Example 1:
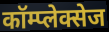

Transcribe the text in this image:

कॉम्प्लेक्सेज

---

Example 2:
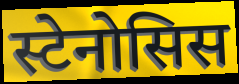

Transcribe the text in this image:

स्टेनोसिस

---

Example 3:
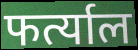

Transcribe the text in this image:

फर्त्याल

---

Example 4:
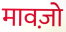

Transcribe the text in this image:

मावज़ो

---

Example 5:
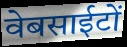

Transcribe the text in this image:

वेबसाईटों